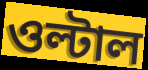
ওল্টাল